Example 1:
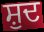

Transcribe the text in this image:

ਸ਼ੁਦ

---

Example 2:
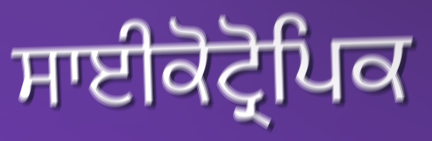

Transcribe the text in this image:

ਸਾਈਕੋਟ੍ਰੋਪਿਕ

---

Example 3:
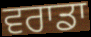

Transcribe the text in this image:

ਵਰਾਡਾ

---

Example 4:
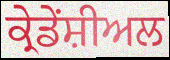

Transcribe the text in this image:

ਕ੍ਰੇਡੇਂਸ਼ੀਅਲ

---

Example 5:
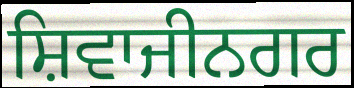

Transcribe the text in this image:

ਸ਼ਿਵਾਜੀਨਗਰ